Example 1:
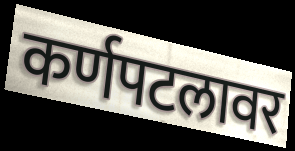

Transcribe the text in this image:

कर्णपटलावर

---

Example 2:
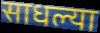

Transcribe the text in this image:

साधल्या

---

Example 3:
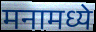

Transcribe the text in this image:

मनामध्ये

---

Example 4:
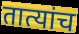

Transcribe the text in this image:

तात्यांच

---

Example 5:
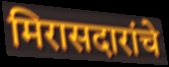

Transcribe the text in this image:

मिरासदारांचे